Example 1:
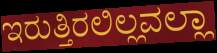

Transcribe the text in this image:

ಇರುತ್ತಿರಲಿಲ್ಲವಲ್ಲಾ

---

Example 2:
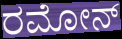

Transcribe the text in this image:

ರಮೋನ್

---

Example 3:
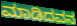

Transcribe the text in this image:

ಮಾಡಿದವನ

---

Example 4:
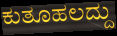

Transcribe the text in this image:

ಕುತೂಹಲದ್ದು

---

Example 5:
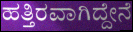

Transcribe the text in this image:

ಹತ್ತಿರವಾಗಿದ್ದೇನೆ